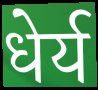
धेर्य